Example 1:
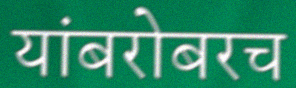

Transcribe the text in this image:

यांबरोबरच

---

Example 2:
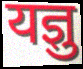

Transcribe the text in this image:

यज्ञु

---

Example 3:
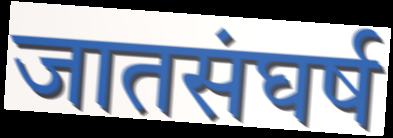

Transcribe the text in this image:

जातसंघर्ष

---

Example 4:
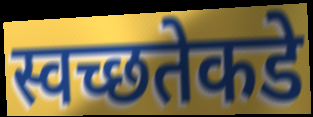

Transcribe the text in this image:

स्वच्छतेकडे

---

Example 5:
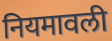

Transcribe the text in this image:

नियमावली